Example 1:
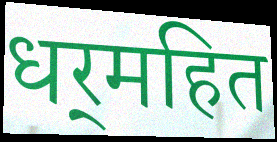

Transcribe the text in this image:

धर्महित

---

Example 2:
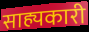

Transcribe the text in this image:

साह्यकारी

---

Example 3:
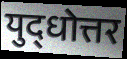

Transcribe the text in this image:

युद्धोत्तर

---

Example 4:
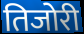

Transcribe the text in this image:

तिजोरी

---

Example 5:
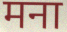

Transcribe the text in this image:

मना